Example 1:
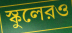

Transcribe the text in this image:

স্কুলেরও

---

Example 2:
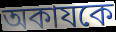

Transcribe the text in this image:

অকাযকে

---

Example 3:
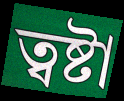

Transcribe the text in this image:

ত্বষ্টা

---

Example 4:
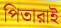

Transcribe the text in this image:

পিতারাই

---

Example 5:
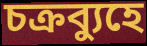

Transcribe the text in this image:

চক্রব্যুহে